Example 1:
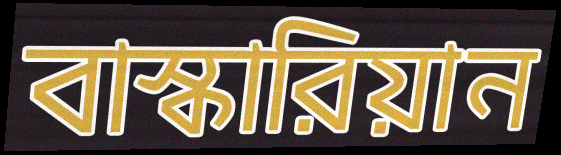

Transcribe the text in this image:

বাস্কারিয়ান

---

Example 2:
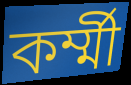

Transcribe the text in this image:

কর্ম্মী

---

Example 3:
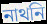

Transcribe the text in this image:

নাথনি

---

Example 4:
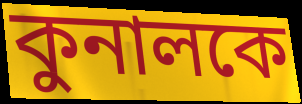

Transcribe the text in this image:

কুনালকে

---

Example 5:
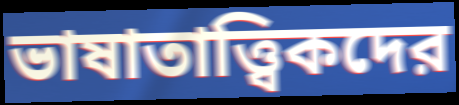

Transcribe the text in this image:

ভাষাতাত্ত্বিকদের